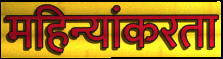
महिन्यांकरता